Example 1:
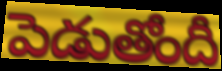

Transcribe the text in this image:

పెడుతోందీ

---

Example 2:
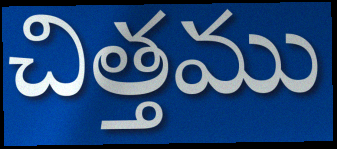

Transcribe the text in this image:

చిత్తము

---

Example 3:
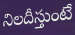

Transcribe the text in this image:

నిలదీస్తుంటే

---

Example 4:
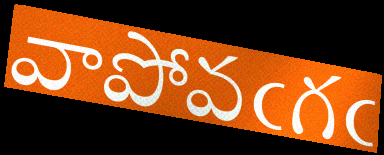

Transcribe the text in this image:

వాపోవఁగఁ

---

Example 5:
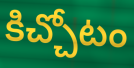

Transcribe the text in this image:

కిచ్చోటం